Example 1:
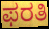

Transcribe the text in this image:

ಫರತಿ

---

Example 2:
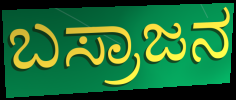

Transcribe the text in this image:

ಬಸ್ರಾಜನ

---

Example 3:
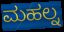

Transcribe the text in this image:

ಮಹಲ್ನ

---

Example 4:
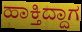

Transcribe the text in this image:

ಹಾಕ್ತಿದ್ದಾಗ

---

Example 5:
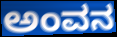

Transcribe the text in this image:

ಅಂವನ